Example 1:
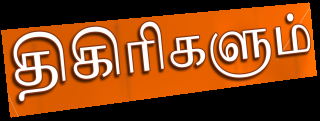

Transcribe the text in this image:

திகிரிகளும்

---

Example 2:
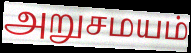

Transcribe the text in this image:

அறுசமயம்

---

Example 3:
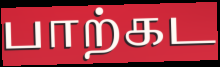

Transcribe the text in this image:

பாற்கட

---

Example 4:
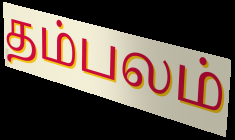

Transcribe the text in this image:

தம்பலம்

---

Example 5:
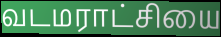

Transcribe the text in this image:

வடமராட்சியை